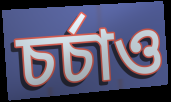
চর্চাও